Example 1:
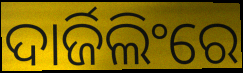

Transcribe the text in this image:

ଦାର୍ଜିଲିଂରେ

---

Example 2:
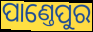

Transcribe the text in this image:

ପାଣ୍ତେପୁର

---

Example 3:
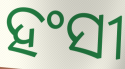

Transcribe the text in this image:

ହଂସୀ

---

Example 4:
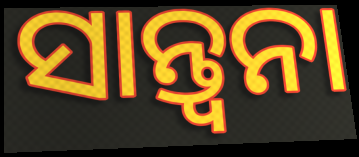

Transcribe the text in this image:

ସାନ୍ତ୍ବନା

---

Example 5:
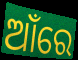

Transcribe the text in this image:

ଆଁରେ